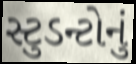
સ્ટુડન્ટોનું